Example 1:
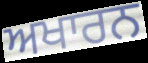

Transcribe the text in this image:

ਅਖਾਰਨ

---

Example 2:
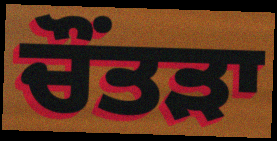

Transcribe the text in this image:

ਚੌਂਤੜਾ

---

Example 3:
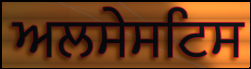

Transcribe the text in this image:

ਅਲਸੇਸਟਿਸ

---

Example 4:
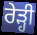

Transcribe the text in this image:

ਰੇੜ੍ਹੀ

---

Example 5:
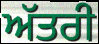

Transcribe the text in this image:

ਅੱਤਰੀ